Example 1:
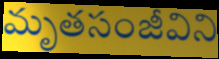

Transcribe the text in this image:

మృతసంజీవిని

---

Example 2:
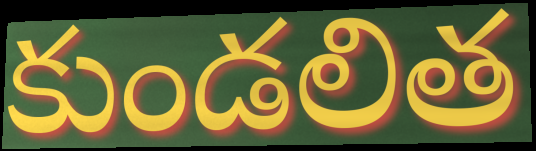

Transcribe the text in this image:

కుండలిత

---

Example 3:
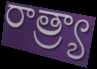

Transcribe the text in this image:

రాత్ర్యా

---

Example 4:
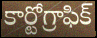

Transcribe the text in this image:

కార్టోగ్రాఫిక్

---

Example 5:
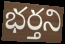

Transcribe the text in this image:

భర్తని